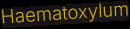
Haematoxylum